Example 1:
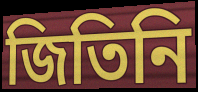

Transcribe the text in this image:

জিতিনি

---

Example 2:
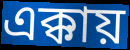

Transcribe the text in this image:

এক্কায়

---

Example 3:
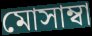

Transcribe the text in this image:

মোসাম্বা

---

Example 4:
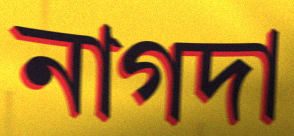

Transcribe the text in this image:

নাগদা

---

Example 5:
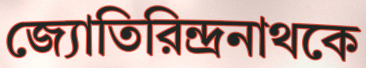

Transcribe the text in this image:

জ্যোতিরিন্দ্রনাথকে